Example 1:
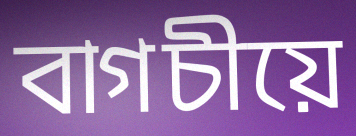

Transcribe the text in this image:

বাগচীয়ে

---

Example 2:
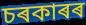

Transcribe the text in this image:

চৰকাৰৰ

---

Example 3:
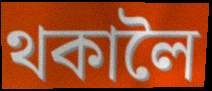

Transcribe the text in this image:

থকালৈ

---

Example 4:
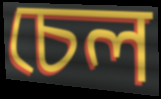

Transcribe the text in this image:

চেল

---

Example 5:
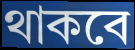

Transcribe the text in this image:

থাকবে